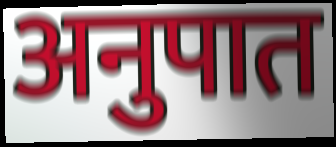
अनुपात